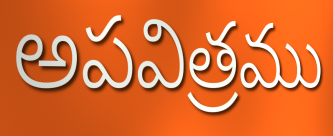
అపవిత్రము